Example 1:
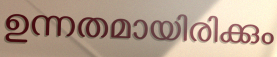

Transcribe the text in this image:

ഉന്നതമായിരിക്കും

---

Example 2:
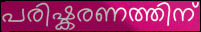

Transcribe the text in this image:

പരിഷ്കരണത്തിന്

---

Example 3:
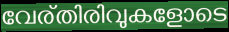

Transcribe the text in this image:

വേര്തിരിവുകളോടെ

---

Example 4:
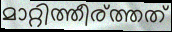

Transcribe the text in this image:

മാറ്റിത്തീര്ത്തത്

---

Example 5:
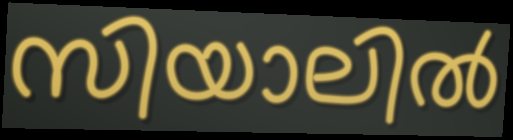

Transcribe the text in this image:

സിയാലിൽ